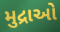
મુદ્રાઓ